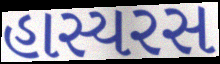
હાસ્યરસ